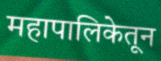
महापालिकेतून